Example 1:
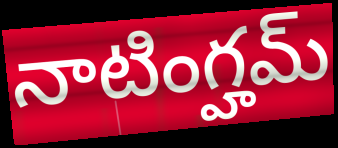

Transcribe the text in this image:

నాటింగ్హమ్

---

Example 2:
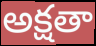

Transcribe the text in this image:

అక్షతా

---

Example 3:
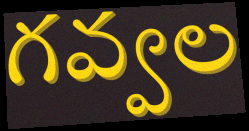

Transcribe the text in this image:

గవ్వల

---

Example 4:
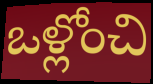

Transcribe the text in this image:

ఒళ్లోంచి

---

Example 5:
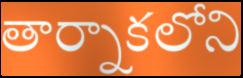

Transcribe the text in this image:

తార్నాకలోని